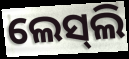
ଲେସ୍‍ଲି